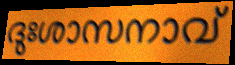
ദുഃശാസനാവ്